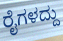
ರೈಗಳದ್ದು